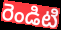
రెండిటి